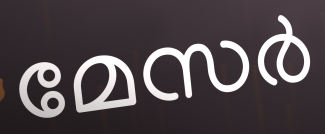
മേസർ